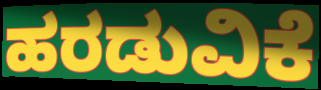
ಹರಡುವಿಕೆ